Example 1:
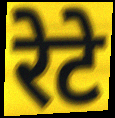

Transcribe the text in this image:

रेटे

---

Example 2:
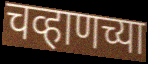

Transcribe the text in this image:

चव्हाणच्या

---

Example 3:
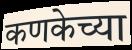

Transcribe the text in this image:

कणकेच्या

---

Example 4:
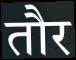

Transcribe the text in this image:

तौर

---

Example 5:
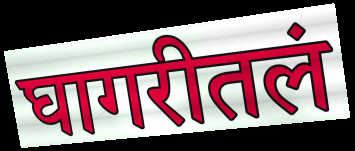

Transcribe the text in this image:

घागरीतलं